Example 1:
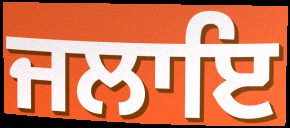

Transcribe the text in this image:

ਜਲਾਇ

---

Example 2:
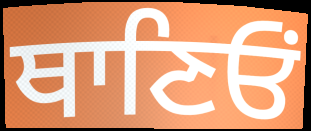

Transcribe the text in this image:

ਥਾਣਿਓਂ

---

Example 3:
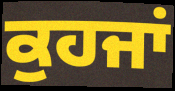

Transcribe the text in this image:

ਕੁਹਜਾਂ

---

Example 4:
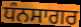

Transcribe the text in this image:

ਧੰਨਸਾਗਰ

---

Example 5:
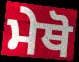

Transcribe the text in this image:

ਮੇਥੋ